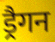
ड्रैगन